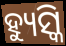
ହ୍ୟୁସ୍କି